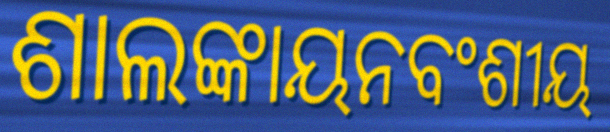
ଶାଲଙ୍କାୟନବଂଶୀୟ